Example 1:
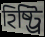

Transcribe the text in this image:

হিষ্ট্রি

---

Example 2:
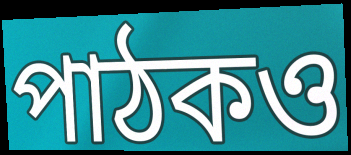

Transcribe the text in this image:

পাঠকও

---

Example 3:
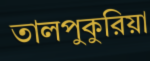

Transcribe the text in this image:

তালপুকুরিয়া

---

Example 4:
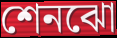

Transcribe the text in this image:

শেনঝো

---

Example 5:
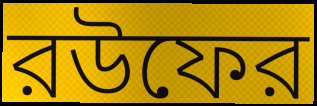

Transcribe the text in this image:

রউফের